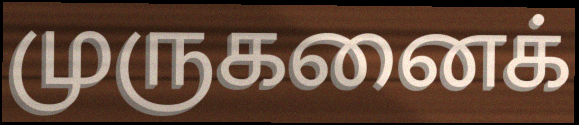
முருகனைக்